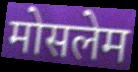
मोसलेम